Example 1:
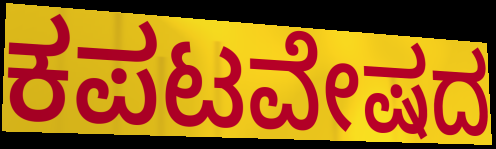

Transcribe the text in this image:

ಕಪಟವೇಷದ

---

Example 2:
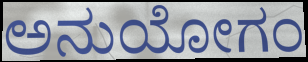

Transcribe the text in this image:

ಅನುಯೋಗಂ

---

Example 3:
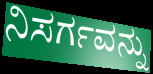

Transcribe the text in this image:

ನಿಸರ್ಗವನ್ನು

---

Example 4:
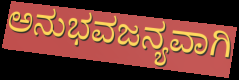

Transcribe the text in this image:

ಅನುಭವಜನ್ಯವಾಗಿ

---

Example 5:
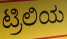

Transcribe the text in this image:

ಟ್ರಿಲಿಯ